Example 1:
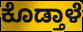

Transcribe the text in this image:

ಕೊಡ್ತಾಳೆ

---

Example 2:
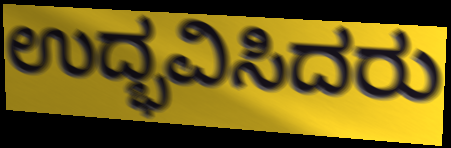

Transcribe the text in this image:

ಉದ್ಭವಿಸಿದರು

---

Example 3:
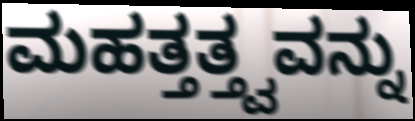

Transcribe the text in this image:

ಮಹತ್ತತ್ತ್ವವನ್ನು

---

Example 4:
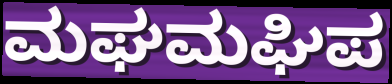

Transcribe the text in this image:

ಮಘಮಘಿಪ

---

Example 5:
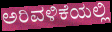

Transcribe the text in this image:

ಅರಿವಳಿಕೆಯಲ್ಲಿ